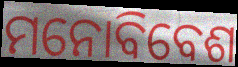
ମନୋବିବେଶ